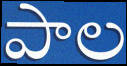
పాల